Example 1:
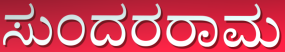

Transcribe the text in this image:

ಸುಂದರರಾಮ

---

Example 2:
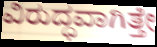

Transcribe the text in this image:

ವಿರುದ್ಧವಾಗಿತ್ತೇ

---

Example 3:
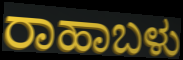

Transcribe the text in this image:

ರಾಹಾಬಳು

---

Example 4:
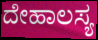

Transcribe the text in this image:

ದೇಹಾಲಸ್ಯ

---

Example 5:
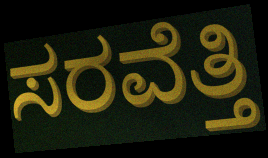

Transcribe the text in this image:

ಸರವೆತ್ತಿ